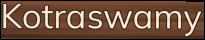
Kotraswamy